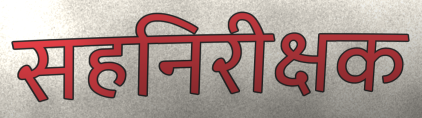
सहनिरीक्षक